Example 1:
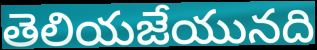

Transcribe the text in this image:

తెలియజేయునది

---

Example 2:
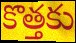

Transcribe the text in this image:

కొత్తకు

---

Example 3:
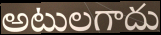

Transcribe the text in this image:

అటులగాదు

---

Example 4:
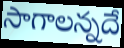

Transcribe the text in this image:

సాగాలన్నదే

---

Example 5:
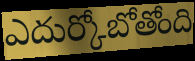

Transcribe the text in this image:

ఎదుర్కోబోతోంది